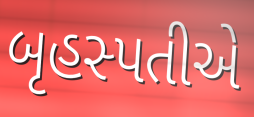
બૃહસ્પતીએ